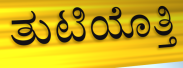
ತುಟಿಯೊತ್ತಿ